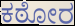
ಕಠೋರ